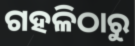
ଗହଳିଠାରୁ